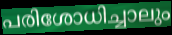
പരിശോധിച്ചാലും